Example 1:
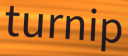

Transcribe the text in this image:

turnip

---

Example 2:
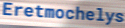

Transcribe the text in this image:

Eretmochelys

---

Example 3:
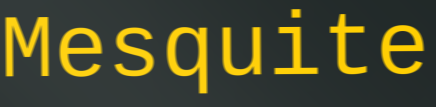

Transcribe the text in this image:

Mesquite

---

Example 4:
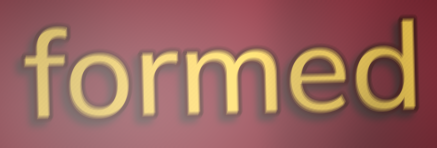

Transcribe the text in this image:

formed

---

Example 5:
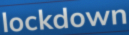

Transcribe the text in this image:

lockdown